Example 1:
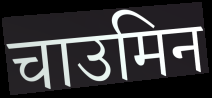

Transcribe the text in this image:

चाउमिन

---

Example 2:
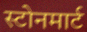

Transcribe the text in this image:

स्टोनमार्ट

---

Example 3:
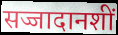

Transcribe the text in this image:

सज्जादानशीं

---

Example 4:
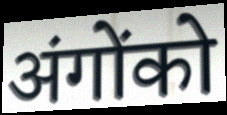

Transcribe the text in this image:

अंगोंको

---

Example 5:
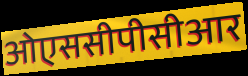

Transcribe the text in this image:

ओएससीपीसीआर